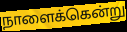
நாளைக்கென்று